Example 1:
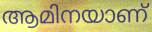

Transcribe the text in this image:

ആമിനയാണ്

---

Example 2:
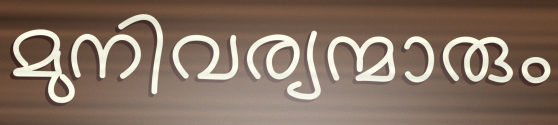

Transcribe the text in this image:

മുനിവര്യന്മാരും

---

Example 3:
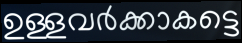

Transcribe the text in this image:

ഉള്ളവർക്കാകട്ടെ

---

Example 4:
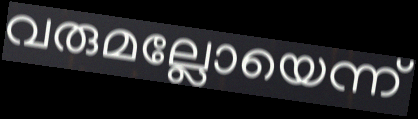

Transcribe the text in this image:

വരുമല്ലോയെന്ന്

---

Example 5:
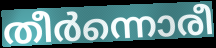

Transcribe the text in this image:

തീർന്നൊരീ